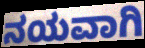
ನಯವಾಗಿ